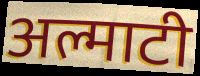
अल्माटी